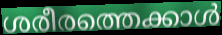
ശരീരത്തെക്കാൾ